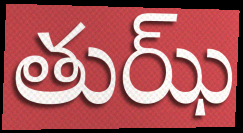
తుఝ్